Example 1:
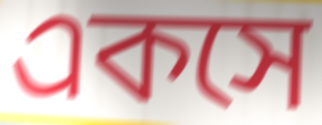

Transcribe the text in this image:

একসে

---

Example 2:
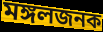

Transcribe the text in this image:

মঙ্গলজনক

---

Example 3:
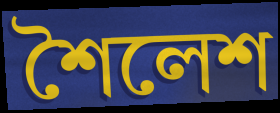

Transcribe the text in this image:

শৈলেশ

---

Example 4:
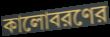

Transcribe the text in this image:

কালোবরণের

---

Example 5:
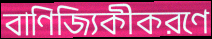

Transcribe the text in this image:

বাণিজ্যিকীকরণে